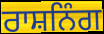
ਰਾਸ਼ਨਿੰਗ